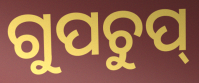
ଗୁପଚୁପ୍